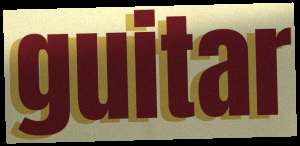
guitar